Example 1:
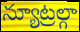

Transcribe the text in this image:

న్యూట్రల్గా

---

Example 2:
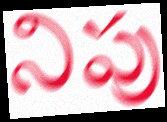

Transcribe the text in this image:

నిపు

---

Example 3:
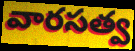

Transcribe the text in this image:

వారసత్వ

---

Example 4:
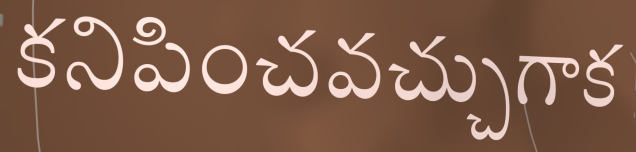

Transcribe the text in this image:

కనిపించవచ్చుగాక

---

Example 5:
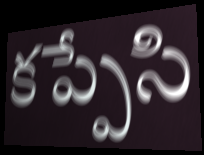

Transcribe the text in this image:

కప్పేసి